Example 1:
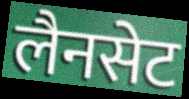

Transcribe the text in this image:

लैनसेट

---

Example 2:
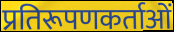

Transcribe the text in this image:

प्रतिरूपणकर्ताओं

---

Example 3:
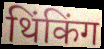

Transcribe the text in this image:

थिंकिंग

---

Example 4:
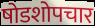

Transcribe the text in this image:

षोडशोपचार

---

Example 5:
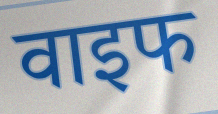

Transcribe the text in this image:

वाइफ